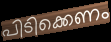
പിടിക്കെണം